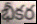
భీకర